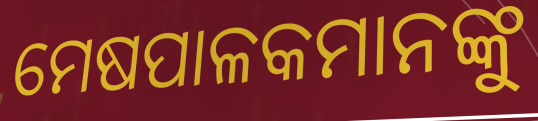
ମେଷପାଳକମାନଙ୍କୁ